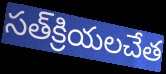
సత్‌క్రియలచేత